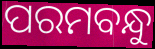
ପରମବନ୍ଧୁ